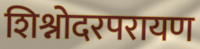
शिश्नोदरपरायण